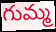
గుమ్మ